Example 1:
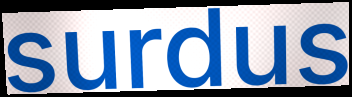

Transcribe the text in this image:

surdus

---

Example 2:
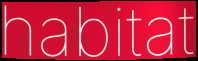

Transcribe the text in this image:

habitat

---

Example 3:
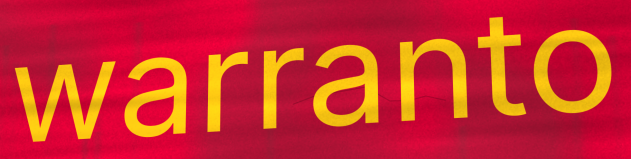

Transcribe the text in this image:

warranto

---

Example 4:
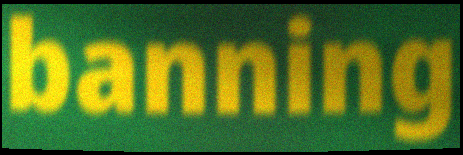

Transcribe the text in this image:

banning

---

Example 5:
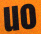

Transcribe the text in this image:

uo